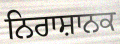
ਨਿਰਾਸ਼ਾਨਕ